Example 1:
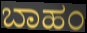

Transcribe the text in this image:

ಬಾಹಂ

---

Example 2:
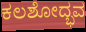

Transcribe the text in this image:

ಕಲಶೋದ್ಭವ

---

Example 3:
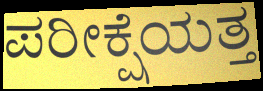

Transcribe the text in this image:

ಪರೀಕ್ಷೆಯತ್ತ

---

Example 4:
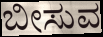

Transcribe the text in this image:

ಬೀಸುವ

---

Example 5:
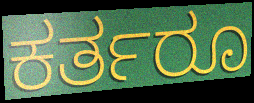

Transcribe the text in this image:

ಕರ್ತರೂ